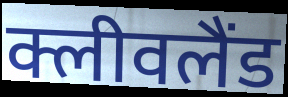
क्लीवलैंड